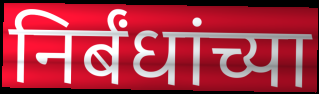
निर्बंधांच्या